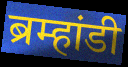
ब्रम्हांडी